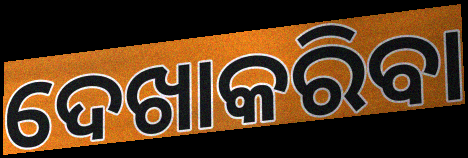
ଦେଖାକରିବା